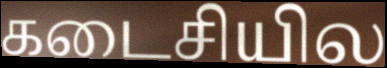
கடைசியில